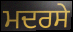
ਮਦਰਸੇ